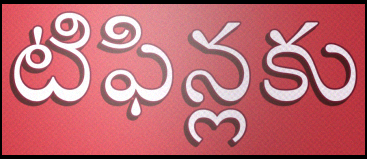
టిఫిన్లకు